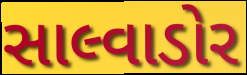
સાલ્વાડોર